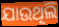
ଯାଉଥିଲି